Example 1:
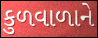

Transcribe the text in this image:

કુળવાળાને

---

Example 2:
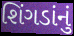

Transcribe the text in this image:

શિંગડાંનું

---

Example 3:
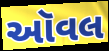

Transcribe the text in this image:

ઑવલ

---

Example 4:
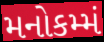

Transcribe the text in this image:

મનોકમ્મં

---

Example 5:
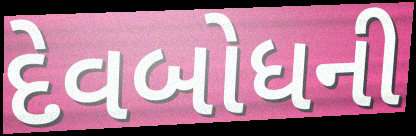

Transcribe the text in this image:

દેવબોધની